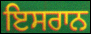
ਇਸਰਾਨ